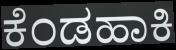
ಕೆಂಡಹಾಕಿ